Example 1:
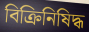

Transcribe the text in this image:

বিক্রিনিষিদ্ধ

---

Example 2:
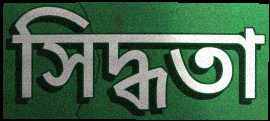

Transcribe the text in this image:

সিদ্ধতা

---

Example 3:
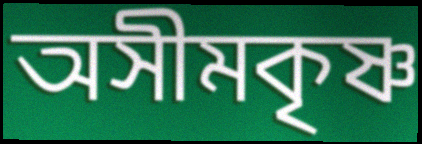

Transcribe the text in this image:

অসীমকৃষ্ণ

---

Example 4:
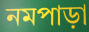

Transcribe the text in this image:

নমপাড়া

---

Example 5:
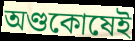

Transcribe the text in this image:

অণ্ডকোষেই